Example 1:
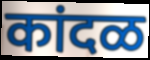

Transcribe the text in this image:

कांदळ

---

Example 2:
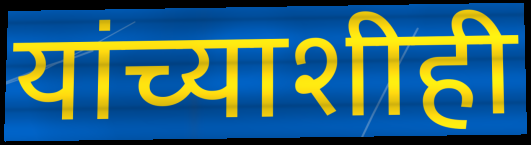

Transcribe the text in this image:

यांच्याशीही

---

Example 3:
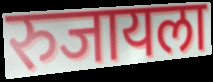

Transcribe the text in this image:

रुजायला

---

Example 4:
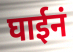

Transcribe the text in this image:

घाईनं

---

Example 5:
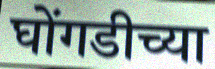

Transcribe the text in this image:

घोंगडीच्या